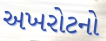
અખરોટનો